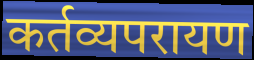
कर्तव्यपरायण